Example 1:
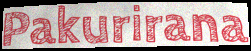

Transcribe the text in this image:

Pakurirana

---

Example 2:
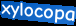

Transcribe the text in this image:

xylocopa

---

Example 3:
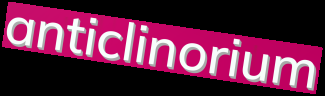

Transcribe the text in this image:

anticlinorium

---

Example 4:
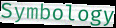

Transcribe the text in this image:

Symbology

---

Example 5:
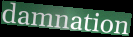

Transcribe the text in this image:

damnation